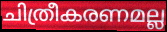
ചിത്രീകരണമല്ല